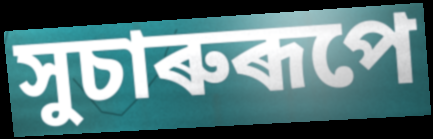
সুচাৰুৰূপে